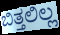
ಬಿತ್ತಲಿಲ್ಲ